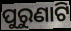
ପୁରୁଣାଟି